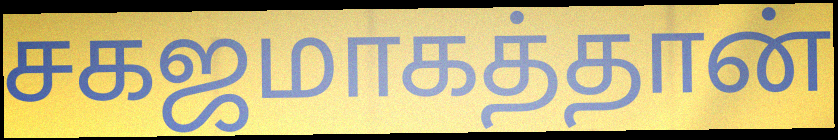
சகஜமாகத்தான்